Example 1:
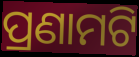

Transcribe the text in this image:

ପ୍ରଣାମଟି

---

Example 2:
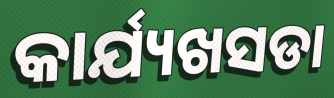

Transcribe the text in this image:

କାର୍ଯ୍ୟଖସଡା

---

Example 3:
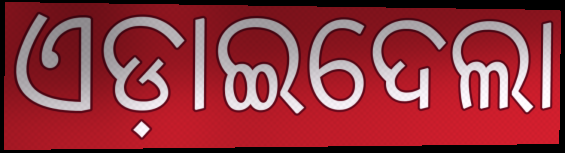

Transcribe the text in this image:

ଏଡ଼ାଇଦେଲା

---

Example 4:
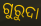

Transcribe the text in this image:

ଗୁରୁଦା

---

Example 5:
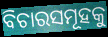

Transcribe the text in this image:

ବିଚାରସମୂହକୁ